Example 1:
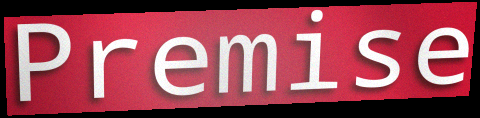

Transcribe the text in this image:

Premise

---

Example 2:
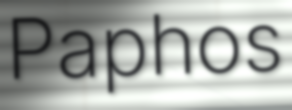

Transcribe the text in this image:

Paphos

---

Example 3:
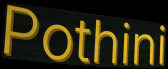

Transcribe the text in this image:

Pothini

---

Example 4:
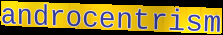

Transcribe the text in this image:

androcentrism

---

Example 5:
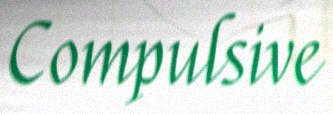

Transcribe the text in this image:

Compulsive